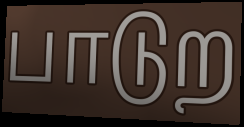
பாடுற